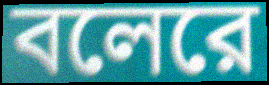
বলেরে